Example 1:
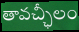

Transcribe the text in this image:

తావచ్ఛీలం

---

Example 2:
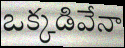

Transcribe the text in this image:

ఒక్కడివేనా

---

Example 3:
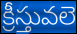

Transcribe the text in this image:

క్రీస్తువలె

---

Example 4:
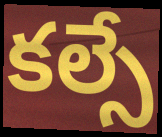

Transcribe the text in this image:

కల్సే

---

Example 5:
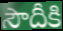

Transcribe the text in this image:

సౌదీకి